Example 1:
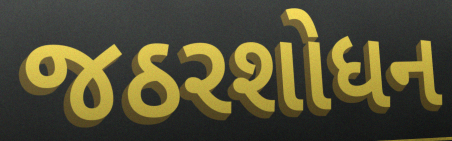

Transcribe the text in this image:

જઠરશોધન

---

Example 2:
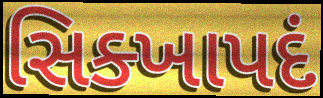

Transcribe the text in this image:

સિક્ખાપદં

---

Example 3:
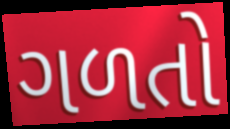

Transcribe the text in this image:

ગળતો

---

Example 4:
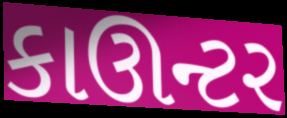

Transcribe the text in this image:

કાઊન્ટર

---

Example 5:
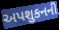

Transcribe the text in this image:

અપશુકનની